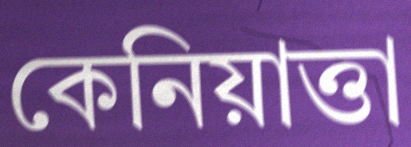
কেনিয়াত্তা